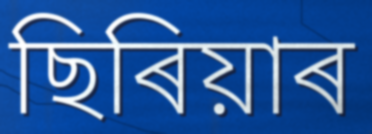
ছিৰিয়াৰ